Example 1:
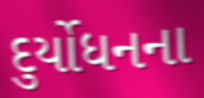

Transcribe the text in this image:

દુર્યોધનના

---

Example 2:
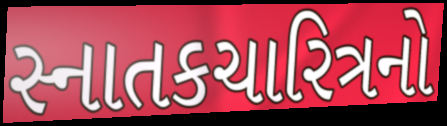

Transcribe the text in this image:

સ્નાતકચારિત્રનો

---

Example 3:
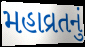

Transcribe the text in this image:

મહાવ્રતનું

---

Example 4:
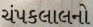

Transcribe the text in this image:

ચંપકલાલનો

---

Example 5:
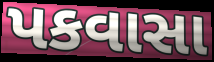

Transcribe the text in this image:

પકવાસા